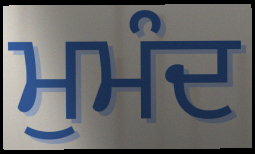
ਮੁਮੰਦ